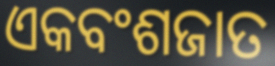
ଏକବଂଶଜାତ